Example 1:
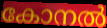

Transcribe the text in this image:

കോനൽ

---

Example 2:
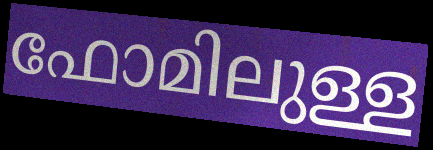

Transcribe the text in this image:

ഫോമിലുള്ള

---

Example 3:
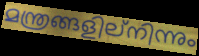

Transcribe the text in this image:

മന്ത്രങ്ങളില്നിന്നും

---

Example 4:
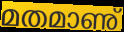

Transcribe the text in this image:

മതമാണു്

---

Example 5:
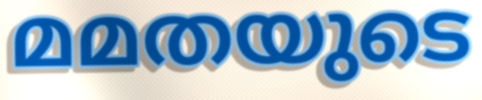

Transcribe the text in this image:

മമതയുടെ